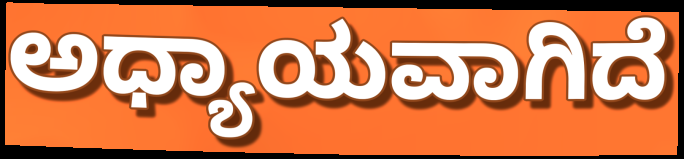
ಅಧ್ಯಾಯವಾಗಿದೆ